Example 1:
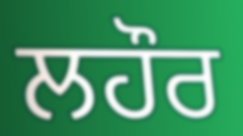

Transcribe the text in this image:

ਲਹੌਰ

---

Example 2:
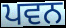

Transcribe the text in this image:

ਪਵਨ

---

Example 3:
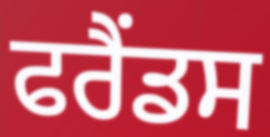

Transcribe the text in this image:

ਫਰੈਂਡਸ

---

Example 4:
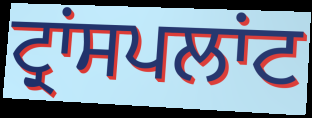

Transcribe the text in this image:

ਟ੍ਰਾਂਸਪਲਾਂਟ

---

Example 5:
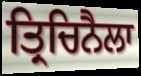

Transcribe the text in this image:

ਤ੍ਰਿਚਿਨੈਲਾ